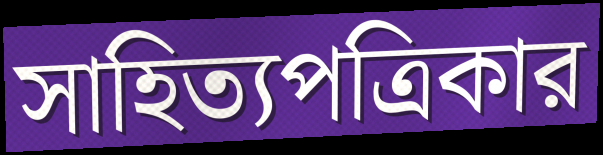
সাহিত্যপত্রিকার